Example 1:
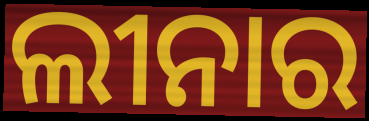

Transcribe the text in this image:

ଲୀନାର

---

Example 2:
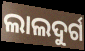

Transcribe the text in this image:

ଲାଲଦୁର୍ଗ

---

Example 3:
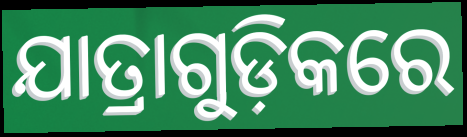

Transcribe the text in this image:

ଯାତ୍ରାଗୁଡ଼ିକରେ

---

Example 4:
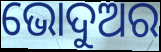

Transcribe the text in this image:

ଭୋଦୁଅର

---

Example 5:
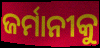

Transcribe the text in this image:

ଜର୍ମାନୀକୁ